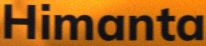
Himanta